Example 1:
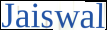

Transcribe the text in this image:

Jaiswal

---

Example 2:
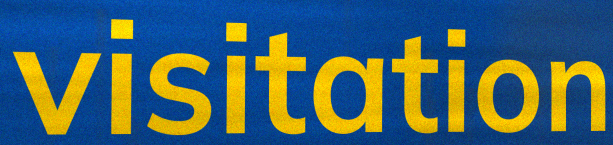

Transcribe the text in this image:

visitation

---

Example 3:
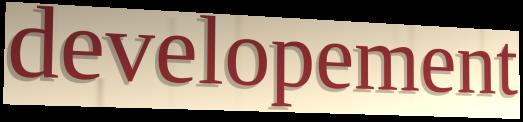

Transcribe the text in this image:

developement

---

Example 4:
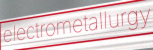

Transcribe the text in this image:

electrometallurgy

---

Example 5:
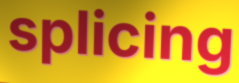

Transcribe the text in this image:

splicing